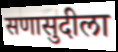
सणासुदीला